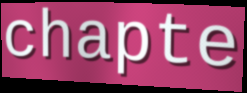
chapte